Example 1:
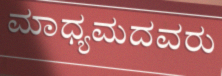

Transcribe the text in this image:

ಮಾಧ್ಯಮದವರು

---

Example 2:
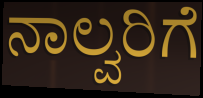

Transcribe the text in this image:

ನಾಲ್ವರಿಗೆ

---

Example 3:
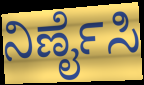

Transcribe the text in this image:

ನಿರ್ಣೈಸಿ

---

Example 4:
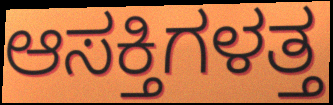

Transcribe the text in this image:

ಆಸಕ್ತಿಗಳತ್ತ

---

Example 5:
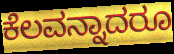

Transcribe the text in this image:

ಕೆಲವನ್ನಾದರೂ